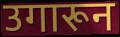
उगारून